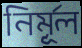
নিৰ্মূল